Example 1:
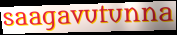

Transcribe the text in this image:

saagavutunna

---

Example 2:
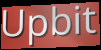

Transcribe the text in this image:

Upbit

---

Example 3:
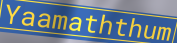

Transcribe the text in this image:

Yaamaththum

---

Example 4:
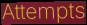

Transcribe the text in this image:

Attempts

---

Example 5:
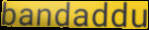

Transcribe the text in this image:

bandaddu